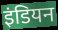
इंडियन